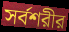
সর্বশরীর